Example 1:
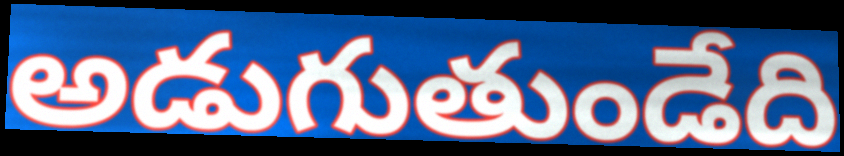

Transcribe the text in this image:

అడుగుతుండేది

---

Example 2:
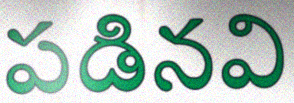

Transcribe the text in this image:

పడినవి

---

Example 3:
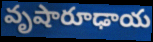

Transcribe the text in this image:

వృషారూఢాయ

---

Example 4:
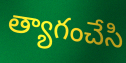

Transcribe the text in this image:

త్యాగంచేసి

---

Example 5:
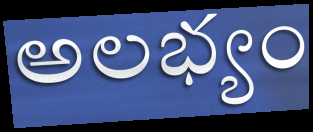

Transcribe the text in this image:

అలభ్యం